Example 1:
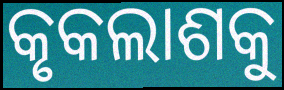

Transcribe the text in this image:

କୃକଲାଶକୁ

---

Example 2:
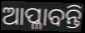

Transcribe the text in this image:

ଆପ୍ଳାବନ୍ତି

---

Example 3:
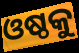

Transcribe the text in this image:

ଓଷ୍ଠକୁ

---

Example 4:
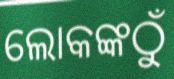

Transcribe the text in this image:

ଲୋକଙ୍କଠୁଁ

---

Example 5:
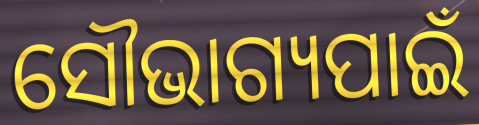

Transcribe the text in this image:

ସୌଭାଗ୍ୟପାଇଁ